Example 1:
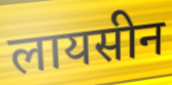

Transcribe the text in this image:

लायसीन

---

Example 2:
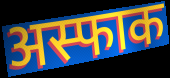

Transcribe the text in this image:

अस्फाक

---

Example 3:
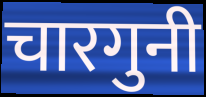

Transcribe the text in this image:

चारगुनी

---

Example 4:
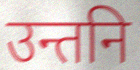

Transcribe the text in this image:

उन्तनि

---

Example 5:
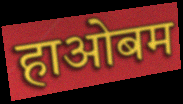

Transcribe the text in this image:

हाओबम